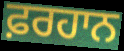
ਫ਼ਰਹਾਨ